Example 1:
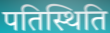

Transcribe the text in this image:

पतिस्थिति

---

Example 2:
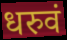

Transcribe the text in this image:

धरुवं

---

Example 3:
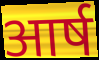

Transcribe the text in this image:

आर्ष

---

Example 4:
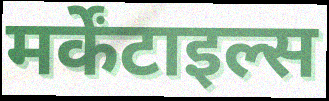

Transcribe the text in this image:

मर्केंटाइल्स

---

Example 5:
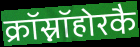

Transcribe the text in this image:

क्रॉस्नॉहोरकै